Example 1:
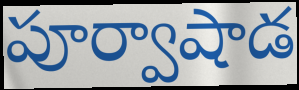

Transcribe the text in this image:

పూర్వాషాడ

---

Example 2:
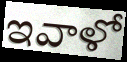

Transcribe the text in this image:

ఇవాళో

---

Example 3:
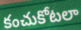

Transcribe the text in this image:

కంచుకోటలా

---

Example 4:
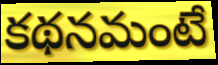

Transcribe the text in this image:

కథనమంటే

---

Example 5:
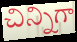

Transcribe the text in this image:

చిన్నిగా